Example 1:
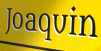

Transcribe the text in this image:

Joaquin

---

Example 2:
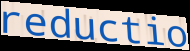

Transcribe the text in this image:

reductio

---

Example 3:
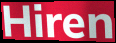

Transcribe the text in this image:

Hiren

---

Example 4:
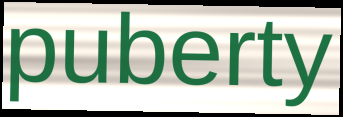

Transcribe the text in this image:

puberty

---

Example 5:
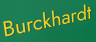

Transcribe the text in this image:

Burckhardt